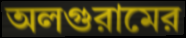
অলগুরামের